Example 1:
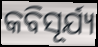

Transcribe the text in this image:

କବିସୂର୍ଯ୍ଯ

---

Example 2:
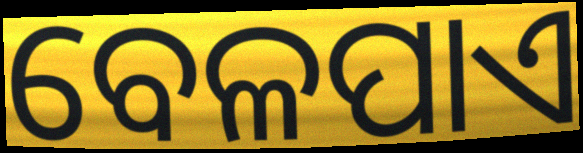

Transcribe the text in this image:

ବେଳପାଏ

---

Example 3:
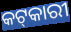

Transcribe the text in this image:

କଟ୍‌କାରୀ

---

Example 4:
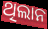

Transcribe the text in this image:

ଥିଲାନ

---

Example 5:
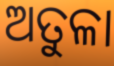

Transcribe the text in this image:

ଅତୁଳା